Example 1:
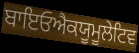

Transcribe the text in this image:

ਬਾਇਓਐਕਯੂਮੂਲੇਟਿਵ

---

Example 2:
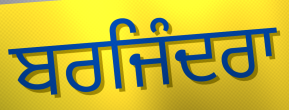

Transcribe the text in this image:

ਬਰਜਿੰਦਰਾ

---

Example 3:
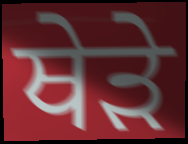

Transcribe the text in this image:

ਥੇੜੇ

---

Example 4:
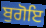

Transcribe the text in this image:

ਬੁਗੋਇ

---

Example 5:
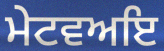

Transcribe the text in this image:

ਮੇਟਵਅਇ